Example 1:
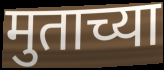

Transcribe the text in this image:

मुताच्या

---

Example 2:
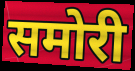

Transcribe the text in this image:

समोरी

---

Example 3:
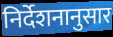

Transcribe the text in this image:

निर्देशनानुसार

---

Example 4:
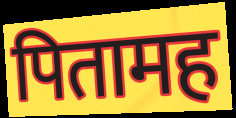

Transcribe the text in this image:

पितामह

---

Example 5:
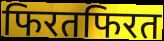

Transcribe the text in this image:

फिरतफिरत